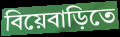
বিয়েবাড়িতে